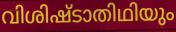
വിശിഷ്ടാതിഥിയും